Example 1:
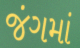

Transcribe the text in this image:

જંગમાં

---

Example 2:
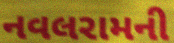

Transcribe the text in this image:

નવલરામની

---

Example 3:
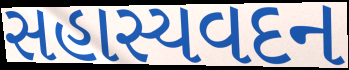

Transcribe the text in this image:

સહાસ્યવદન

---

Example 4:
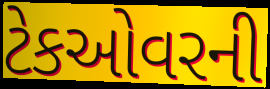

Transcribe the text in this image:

ટેકઓવરની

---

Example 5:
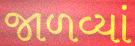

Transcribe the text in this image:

જાળવ્યાં